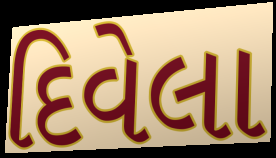
દિવેલા